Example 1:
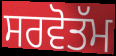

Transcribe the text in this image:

ਸਰਵੋਤੱਮ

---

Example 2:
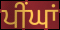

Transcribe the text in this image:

ਪੀਂਘਾਂ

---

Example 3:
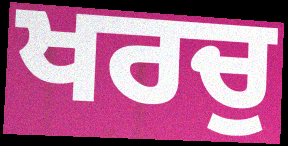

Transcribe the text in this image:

ਖਰਚੁ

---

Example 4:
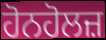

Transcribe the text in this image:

ਹੋਨਹੋਲਜ਼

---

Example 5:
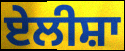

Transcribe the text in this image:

ਏਲੀਸ਼ਾ